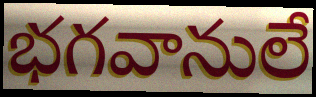
భగవానులే